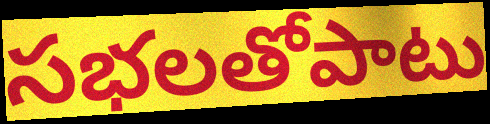
సభలతోపాటు